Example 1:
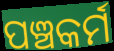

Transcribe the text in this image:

ପଞ୍ଚକର୍ମ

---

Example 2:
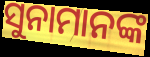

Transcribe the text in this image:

ସୁନାମାନଙ୍କ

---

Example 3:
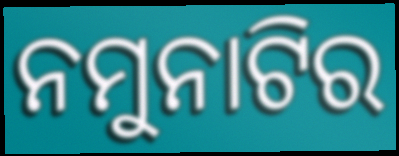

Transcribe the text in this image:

ନମୁନାଟିର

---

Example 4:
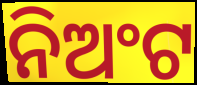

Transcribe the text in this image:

ନିଅଂଟ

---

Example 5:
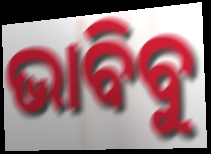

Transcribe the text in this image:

ଭାବିବୁ